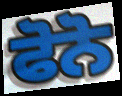
ਫੋਨੋ